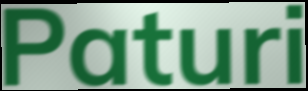
Paturi